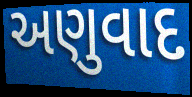
અણુવાદ